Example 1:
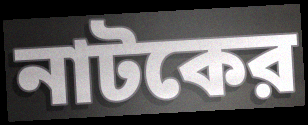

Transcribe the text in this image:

নাটকের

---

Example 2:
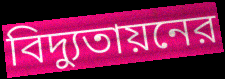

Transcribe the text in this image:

বিদ্যুতায়নের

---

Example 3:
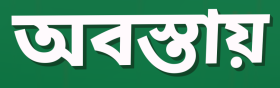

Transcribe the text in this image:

অবস্তায়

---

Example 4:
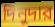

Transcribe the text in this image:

দিনুদার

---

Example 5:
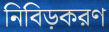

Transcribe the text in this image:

নিবিড়করণ